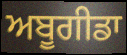
ਅਬੂਗੀਡਾ